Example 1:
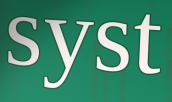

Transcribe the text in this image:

syst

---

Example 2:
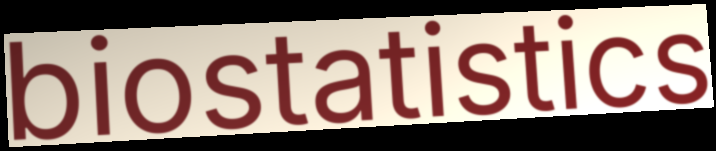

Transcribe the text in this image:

biostatistics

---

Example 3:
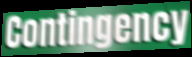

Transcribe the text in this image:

Contingency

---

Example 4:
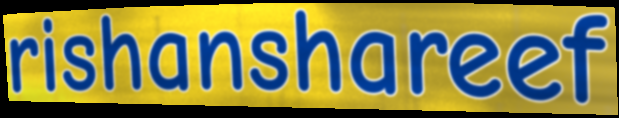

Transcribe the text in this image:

rishanshareef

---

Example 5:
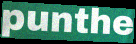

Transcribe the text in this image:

punthe